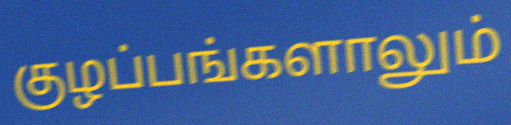
குழப்பங்களாலும்